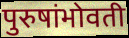
पुरुषांभोवती